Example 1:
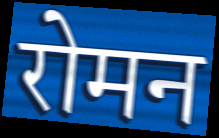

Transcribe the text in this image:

रोमन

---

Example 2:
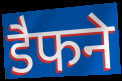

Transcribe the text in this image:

डैफने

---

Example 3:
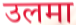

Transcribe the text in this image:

उलमा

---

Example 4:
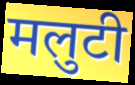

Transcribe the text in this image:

मलुटी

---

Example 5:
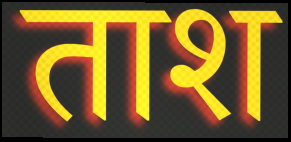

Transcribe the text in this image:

ताश